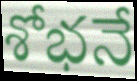
శోభనే